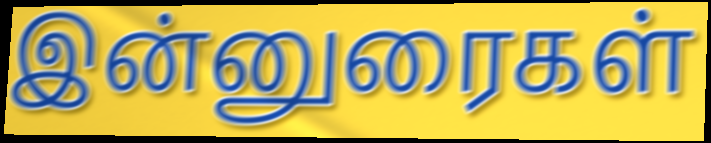
இன்னுரைகள்